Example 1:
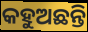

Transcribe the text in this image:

କହୁଅଛନ୍ତି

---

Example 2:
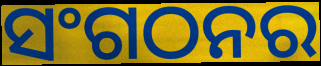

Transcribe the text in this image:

ସଂଗଠନର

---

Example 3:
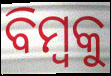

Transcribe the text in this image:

ବିମ୍ବକୁ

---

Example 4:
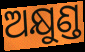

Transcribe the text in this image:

ଅକ୍ଷୁଣ୍ଡ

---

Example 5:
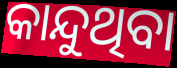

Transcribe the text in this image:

କାନ୍ଦୁଥିବା